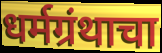
धर्मग्रंथाचा